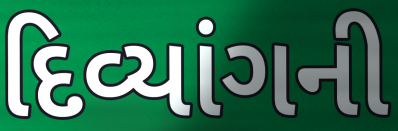
દિવ્યાંગની